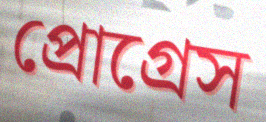
প্রোগ্রেস